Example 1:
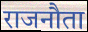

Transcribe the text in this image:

राजनौता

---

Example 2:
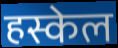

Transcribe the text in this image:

हस्केल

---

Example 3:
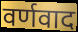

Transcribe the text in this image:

वर्णवाद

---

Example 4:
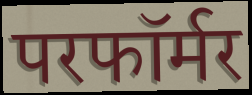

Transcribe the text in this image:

परफॉर्मर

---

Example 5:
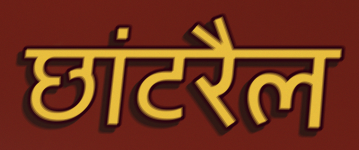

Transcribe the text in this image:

छांटरैल